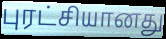
புரட்சியானது